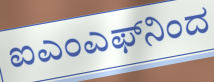
ಐಎಂಎಫ್‌ನಿಂದ